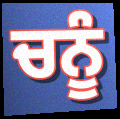
ਚਨੂੰ